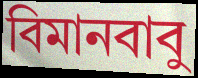
বিমানবাবু